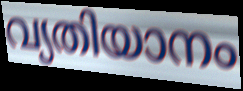
വ്യതിയാനം